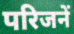
परिजनें